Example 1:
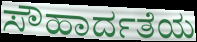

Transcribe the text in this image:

ಸೌಹಾರ್ದತೆಯ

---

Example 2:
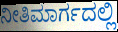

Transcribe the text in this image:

ನೀತಿಮಾರ್ಗದಲ್ಲಿ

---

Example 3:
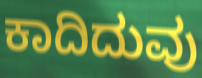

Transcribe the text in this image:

ಕಾದಿದುವು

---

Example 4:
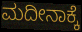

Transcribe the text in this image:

ಮದೀನಾಕ್ಕೆ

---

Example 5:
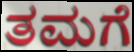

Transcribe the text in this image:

ತಮಗೆ